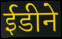
ईडीने